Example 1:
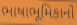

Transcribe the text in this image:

ભાષાભૂમિકાનો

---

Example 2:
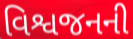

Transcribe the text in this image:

વિશ્વજનની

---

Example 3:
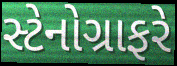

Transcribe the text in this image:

સ્ટેનોગ્રાફરે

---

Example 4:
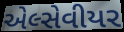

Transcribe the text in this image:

એલ્સેવીયર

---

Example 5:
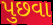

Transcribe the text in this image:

પુછવા